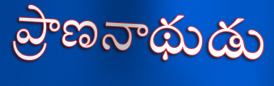
ప్రాణనాథుడు